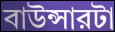
বাউন্সারটা